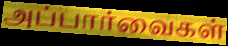
அப்பார்வைகள்